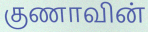
குணாவின்